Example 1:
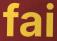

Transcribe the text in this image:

fai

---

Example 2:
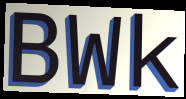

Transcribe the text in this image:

BWk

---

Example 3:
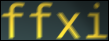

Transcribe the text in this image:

ffxi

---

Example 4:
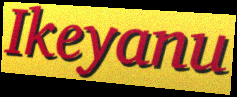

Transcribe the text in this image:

Ikeyanu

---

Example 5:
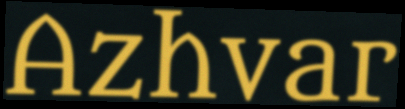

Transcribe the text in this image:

Azhvar